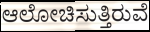
ಆಲೋಚಿಸುತ್ತಿರುವೆ